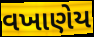
વખાણેય